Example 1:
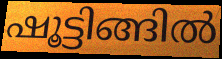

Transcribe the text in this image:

ഷൂട്ടിങ്ങിൽ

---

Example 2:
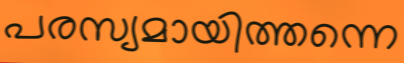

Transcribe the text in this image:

പരസ്യമായിത്തന്നെ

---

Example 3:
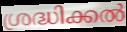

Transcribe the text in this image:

ശ്രദ്ധിക്കൽ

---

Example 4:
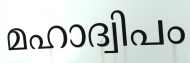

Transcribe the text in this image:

മഹാദ്വിപം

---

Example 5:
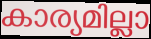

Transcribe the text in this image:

കാര്യമില്ലാ